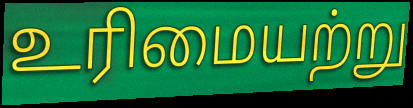
உரிமையற்று